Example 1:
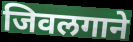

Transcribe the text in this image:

जिवलगाने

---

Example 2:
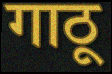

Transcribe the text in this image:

गाठू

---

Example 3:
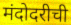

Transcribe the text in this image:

मंदोदरीची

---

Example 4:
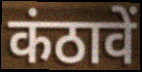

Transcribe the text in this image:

कंठावें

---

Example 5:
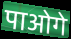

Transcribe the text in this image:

पाओगे